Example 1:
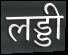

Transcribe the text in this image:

लड्डी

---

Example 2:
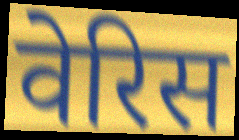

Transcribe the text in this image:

वेरिस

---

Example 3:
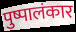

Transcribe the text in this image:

पुष्पालंकार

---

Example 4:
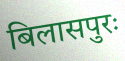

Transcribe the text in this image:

बिलासपुरः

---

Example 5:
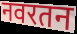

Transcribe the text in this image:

नवरतन